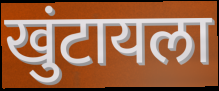
खुंटायला